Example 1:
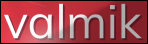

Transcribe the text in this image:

valmik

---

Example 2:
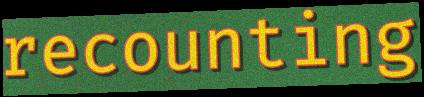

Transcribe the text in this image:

recounting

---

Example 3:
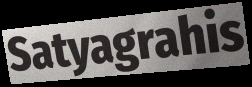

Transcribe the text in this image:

Satyagrahis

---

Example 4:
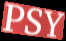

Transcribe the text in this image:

PSY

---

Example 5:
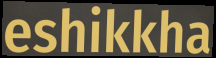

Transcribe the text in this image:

eshikkha